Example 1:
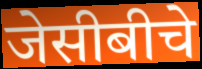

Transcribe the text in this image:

जेसीबीचे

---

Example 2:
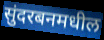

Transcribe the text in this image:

सुंदरबनमधील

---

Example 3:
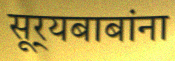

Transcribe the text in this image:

सूर्यबाबांना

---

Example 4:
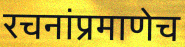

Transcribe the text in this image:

रचनांप्रमाणेच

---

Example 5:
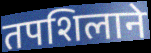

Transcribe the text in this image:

तपशिलाने